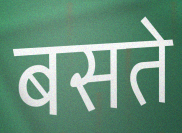
बसते